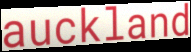
auckland